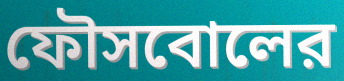
ফৌসবোলের